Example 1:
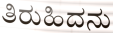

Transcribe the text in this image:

ತಿರುಹಿದನು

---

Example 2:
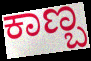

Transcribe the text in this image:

ಕಾಣ್ಬ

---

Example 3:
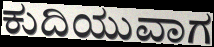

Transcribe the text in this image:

ಕುದಿಯುವಾಗ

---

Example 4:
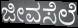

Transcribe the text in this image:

ಜೀವಸೆಲೆ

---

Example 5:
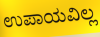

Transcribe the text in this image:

ಉಪಾಯವಿಲ್ಲ